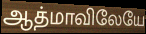
ஆத்மாவிலேயே